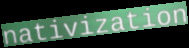
nativization